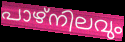
പാഴ്നിലവും